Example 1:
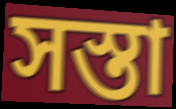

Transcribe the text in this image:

সস্তা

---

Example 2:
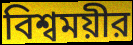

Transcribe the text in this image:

বিশ্বময়ীর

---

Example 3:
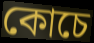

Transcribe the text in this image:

কোচে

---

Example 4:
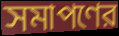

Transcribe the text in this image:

সমাপণের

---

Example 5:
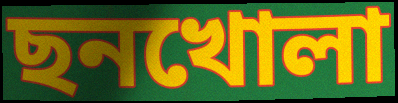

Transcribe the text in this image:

ছনখোলা